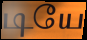
டியே